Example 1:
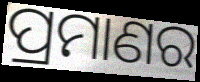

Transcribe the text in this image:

ପ୍ରମାଣର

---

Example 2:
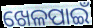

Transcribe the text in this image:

ଖେଳପାଇଁ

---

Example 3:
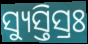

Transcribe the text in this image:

ସ୍ୟୁସ୍ତିସ୍ରଃ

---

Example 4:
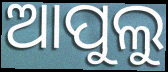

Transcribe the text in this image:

ଆପୁଲୁ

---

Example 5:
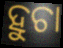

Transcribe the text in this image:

ହୁଚା